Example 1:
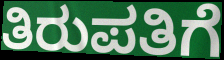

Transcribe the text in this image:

ತಿರುಪತಿಗೆ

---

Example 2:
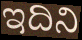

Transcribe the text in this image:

ಇದಿನಿ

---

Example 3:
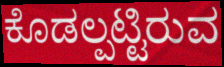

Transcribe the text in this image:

ಕೊಡಲ್ಪಟ್ಟಿರುವ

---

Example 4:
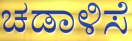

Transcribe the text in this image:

ಚಡಾಳಿಸೆ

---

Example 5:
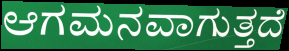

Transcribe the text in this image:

ಆಗಮನವಾಗುತ್ತದೆ